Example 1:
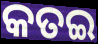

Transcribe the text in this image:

କତଇ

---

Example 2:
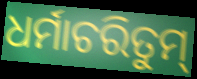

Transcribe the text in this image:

ଧର୍ମାଚରିତୁମ୍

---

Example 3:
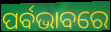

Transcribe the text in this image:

ପର୍ବଭାବରେ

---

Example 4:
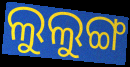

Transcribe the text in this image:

ଲୁଲୁଙ୍ଗ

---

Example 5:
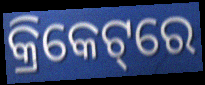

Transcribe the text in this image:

କ୍ରିକେଟ୍‌ରେ